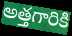
అత్తగారికి